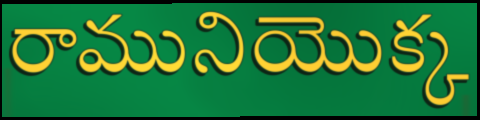
రామునియొక్క